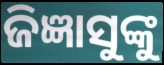
ଜିଜ୍ଞାସୁଙ୍କୁ